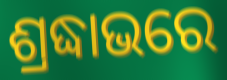
ଶ୍ରଦ୍ଧାଭରେ